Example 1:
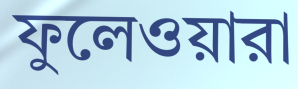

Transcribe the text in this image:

ফুলেওয়ারা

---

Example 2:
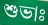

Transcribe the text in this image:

শুভাঃ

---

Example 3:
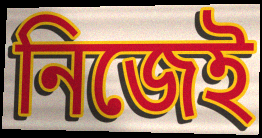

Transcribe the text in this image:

নিজেই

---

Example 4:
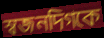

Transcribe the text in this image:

স্বজনদিগকে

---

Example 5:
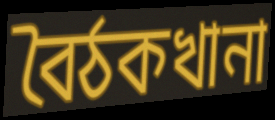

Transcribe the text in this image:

বৈঠকখানা